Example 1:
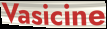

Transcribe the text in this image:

Vasicine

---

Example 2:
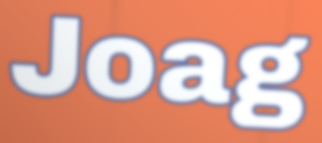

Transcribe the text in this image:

Joag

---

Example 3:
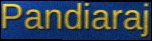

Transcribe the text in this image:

Pandiaraj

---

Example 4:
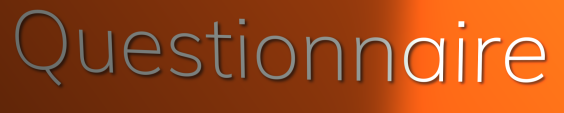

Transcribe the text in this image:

Questionnaire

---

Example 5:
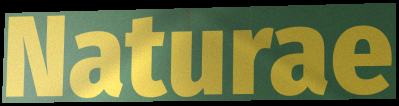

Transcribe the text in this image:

Naturae